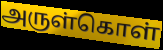
அருள்கொள்